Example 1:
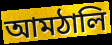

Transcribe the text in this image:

আমঠালি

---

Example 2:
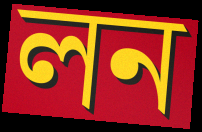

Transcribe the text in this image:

লন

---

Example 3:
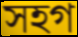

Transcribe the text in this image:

সহগ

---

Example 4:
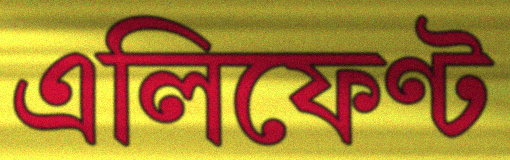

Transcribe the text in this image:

এলিফেণ্ট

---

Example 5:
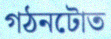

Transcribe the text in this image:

গঠনটোত